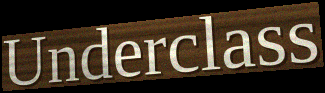
Underclass